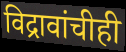
विद्रावांचीही